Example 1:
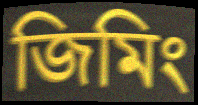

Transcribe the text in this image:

জিমিং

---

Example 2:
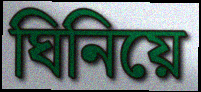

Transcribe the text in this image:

ঘিনিয়ে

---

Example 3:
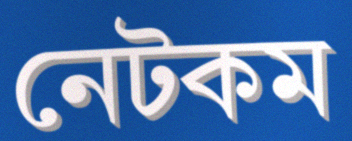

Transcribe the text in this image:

নেটকম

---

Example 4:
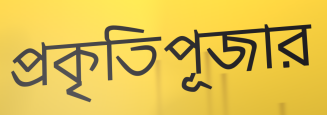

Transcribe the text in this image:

প্রকৃতিপূজার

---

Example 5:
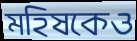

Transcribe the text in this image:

মহিষকেও